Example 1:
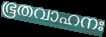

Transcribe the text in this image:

ഭൂതവാഹനഃ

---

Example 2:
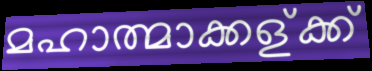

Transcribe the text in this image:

മഹാത്മാക്കള്ക്ക്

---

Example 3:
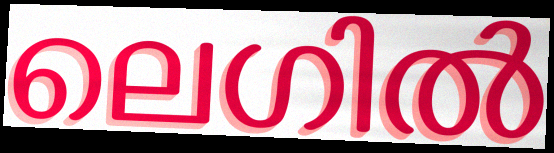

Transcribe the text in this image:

ലെഗിൽ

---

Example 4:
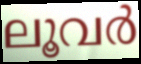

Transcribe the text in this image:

ലൂവർ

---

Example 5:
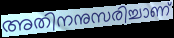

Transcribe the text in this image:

അതിനനുസരിച്ചാണ്